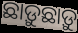
ଛାଡ଼ୁଛାଡ଼ୁ